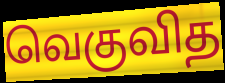
வெகுவித